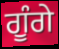
ਗੂੰਗੇ